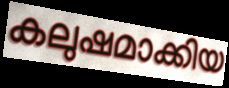
കലുഷമാക്കിയ